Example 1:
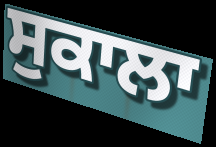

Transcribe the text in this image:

ਸੁਕਾਲਾ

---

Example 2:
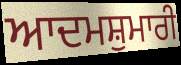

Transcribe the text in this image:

ਆਦਮਸ਼ੁਮਾਰੀ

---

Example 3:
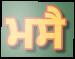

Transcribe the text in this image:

ਮਸੈ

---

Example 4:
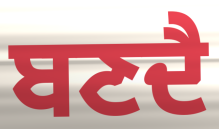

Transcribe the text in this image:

ਬਣਦੈ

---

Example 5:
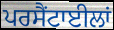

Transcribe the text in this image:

ਪਰਸੈਂਟਾਈਲਾਂ